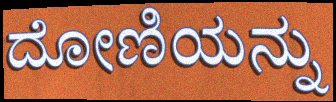
ದೋಣಿಯನ್ನು